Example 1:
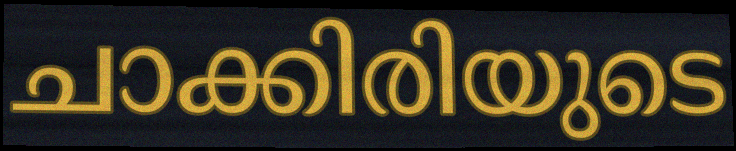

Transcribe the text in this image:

ചാക്കിരിയുടെ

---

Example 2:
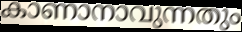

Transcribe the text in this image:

കാണാനാവുന്നതും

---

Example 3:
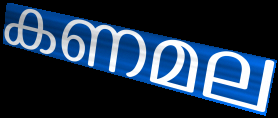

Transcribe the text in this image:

കണമല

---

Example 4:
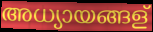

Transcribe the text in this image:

അധ്യായങ്ങള്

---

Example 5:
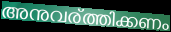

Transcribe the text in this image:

അനുവര്ത്തിക്കണം